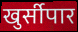
खुर्सीपार